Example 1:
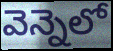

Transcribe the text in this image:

వెన్నెలో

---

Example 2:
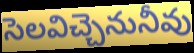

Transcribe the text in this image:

సెలవిచ్చెనునీవు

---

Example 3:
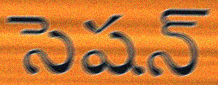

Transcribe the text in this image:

సెషన్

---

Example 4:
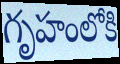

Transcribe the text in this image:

గృహంలోకి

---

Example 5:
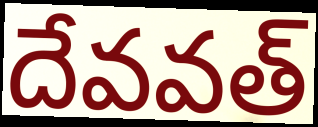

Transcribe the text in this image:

దేవవత్